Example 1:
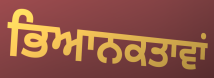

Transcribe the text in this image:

ਭਿਆਨਕਤਾਵਾਂ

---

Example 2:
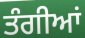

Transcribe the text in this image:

ਤੰਗੀਆਂ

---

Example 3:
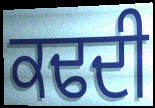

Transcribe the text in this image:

ਕਢਦੀ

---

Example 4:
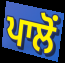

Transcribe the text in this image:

ਪਾਲੋਂ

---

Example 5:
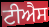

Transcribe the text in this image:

ਟੀਐਸ